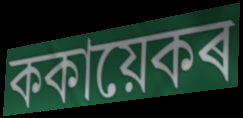
ককায়েকৰ